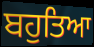
ਬਹੁਤਿਆ